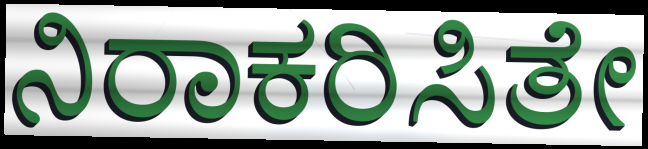
ನಿರಾಕರಿಸಿತೇ